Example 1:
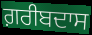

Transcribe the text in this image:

ਗ਼ਰੀਬਦਾਸ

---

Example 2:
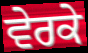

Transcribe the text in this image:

ਵੇਰਕੇ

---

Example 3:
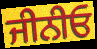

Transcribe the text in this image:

ਜੀਨੀਓ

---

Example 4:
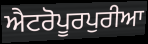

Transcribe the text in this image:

ਐਟਰੋਪੂਰਪੁਰੀਆ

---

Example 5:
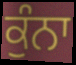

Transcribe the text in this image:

ਕੁੰਨਾ